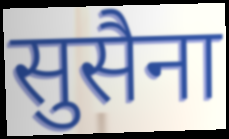
सुसैना